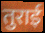
तुराई